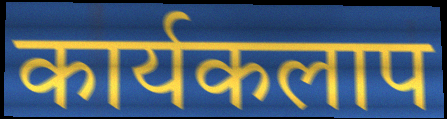
कार्यकलाप